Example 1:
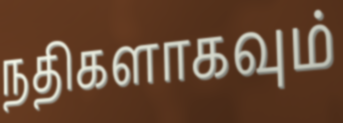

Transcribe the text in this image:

நதிகளாகவும்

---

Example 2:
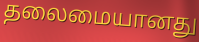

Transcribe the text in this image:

தலைமையானது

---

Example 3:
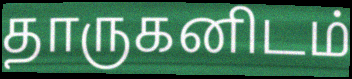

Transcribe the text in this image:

தாருகனிடம்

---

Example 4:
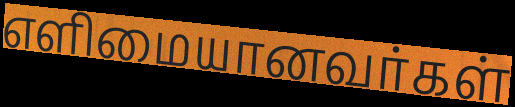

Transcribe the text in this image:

எளிமையானவர்கள்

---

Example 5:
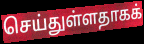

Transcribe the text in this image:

செய்துள்ளதாகக்